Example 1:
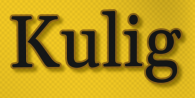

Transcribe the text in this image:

Kulig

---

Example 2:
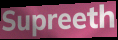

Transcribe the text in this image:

Supreeth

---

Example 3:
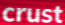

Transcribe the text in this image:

crust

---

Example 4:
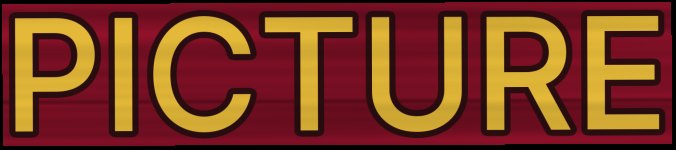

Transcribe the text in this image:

PICTURE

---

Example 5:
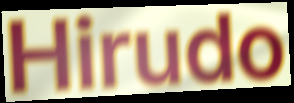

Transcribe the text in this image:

Hirudo